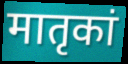
मातृकां